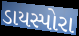
ડાયસ્પોરા